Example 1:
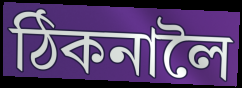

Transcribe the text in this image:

ঠিকনালৈ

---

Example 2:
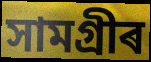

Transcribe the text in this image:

সামগ্ৰীৰ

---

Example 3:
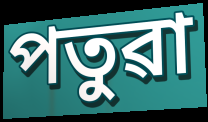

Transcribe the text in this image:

পতুৱা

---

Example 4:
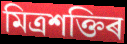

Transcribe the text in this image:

মিত্ৰশক্তিৰ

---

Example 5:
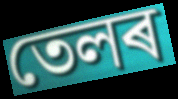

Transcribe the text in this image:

তেলৰ